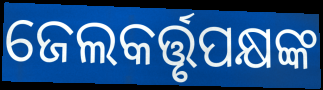
ଜେଲକର୍ତ୍ତୃପକ୍ଷଙ୍କ